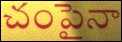
చంపైనా